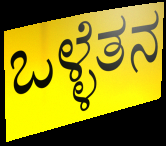
ಒಳ್ಳೆತನ